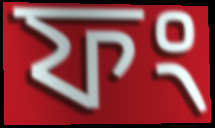
ফং